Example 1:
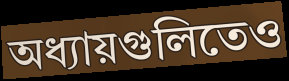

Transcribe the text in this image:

অধ্যায়গুলিতেও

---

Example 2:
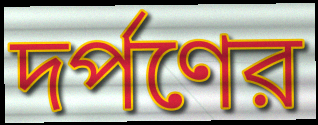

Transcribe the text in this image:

দর্পণের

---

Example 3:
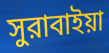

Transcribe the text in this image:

সুরাবাইয়া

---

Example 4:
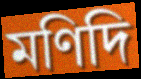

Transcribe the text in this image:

মণিদি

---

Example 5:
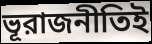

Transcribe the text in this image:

ভূরাজনীতিই